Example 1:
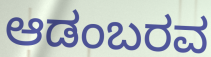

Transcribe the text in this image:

ಆಡಂಬರವ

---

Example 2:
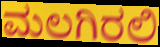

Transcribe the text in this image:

ಮಲಗಿರಲಿ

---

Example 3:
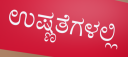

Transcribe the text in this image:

ಉಷ್ಣತೆಗಳಲ್ಲಿ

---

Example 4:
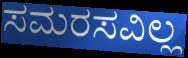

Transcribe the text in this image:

ಸಮರಸವಿಲ್ಲ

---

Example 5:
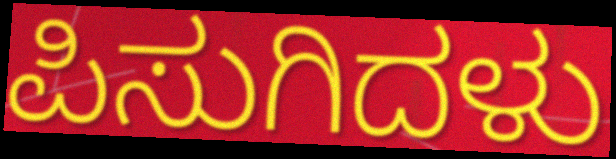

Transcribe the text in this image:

ಪಿಸುಗಿದಳು